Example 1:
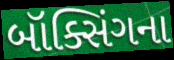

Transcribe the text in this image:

બૉક્સિંગના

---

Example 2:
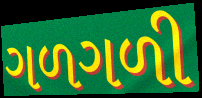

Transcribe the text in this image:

ગળગળી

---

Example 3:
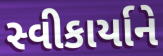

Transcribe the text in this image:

સ્વીકાર્યાને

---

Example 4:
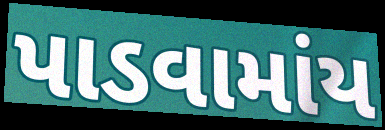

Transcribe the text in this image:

પાડવામાંય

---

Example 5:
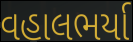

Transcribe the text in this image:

વહાલભર્યા